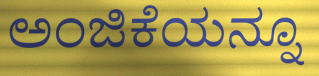
ಅಂಜಿಕೆಯನ್ನೂ